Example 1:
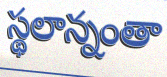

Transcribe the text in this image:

స్థలాన్నంతా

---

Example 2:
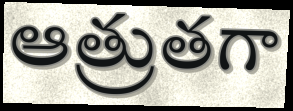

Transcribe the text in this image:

ఆత్రుతగా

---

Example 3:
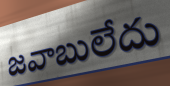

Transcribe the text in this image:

జవాబులేదు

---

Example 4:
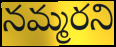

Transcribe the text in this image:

నమ్మరని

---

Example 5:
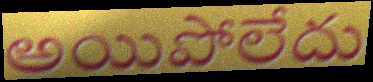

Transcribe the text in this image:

అయిపోలేదు